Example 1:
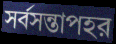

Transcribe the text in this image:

সর্বসন্তাপহর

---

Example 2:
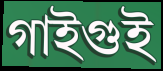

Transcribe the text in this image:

গাইগুই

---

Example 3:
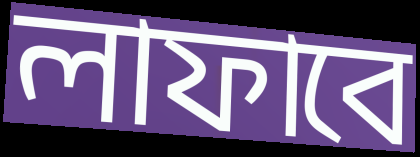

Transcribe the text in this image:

লাফাবে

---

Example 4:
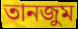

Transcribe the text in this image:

তানজুম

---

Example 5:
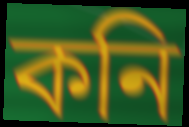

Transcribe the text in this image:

কনি